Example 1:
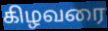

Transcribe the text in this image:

கிழவரை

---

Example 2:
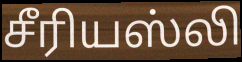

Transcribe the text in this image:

சீரியஸ்லி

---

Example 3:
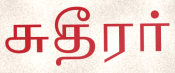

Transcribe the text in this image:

சுதீரர்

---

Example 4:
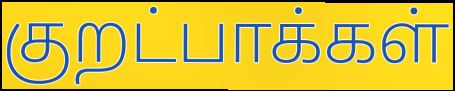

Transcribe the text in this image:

குறட்பாக்கள்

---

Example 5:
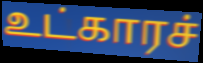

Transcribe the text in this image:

உட்காரச்